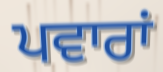
ਪਵਾਰਾਂ